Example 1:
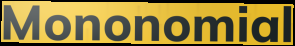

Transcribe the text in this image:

Mononomial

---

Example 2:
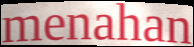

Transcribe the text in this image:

menahan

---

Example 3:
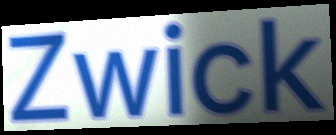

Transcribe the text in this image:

Zwick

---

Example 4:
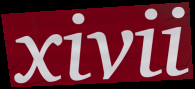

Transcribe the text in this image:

xivii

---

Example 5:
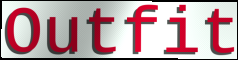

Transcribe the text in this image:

Outfit